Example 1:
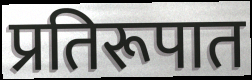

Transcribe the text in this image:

प्रतिरूपात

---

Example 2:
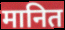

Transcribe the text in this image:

मानित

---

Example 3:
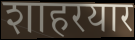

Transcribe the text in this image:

शाहरयार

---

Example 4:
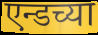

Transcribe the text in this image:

एन्डच्या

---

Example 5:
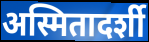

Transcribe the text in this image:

अस्मितादर्शी